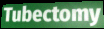
Tubectomy